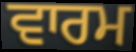
ਵਾਰਮ